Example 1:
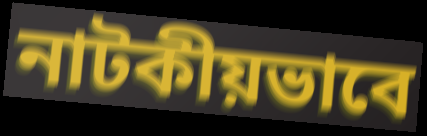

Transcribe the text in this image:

নাটকীয়ভাবে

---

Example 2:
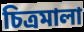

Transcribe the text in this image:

চিত্রমালা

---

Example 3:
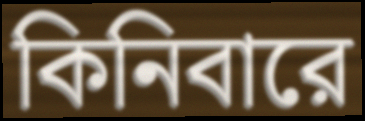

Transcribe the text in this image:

কিনিবারে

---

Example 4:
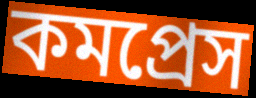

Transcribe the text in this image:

কমপ্রেস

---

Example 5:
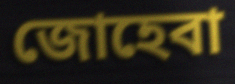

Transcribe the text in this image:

জোহেবা